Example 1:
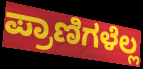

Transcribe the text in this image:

ಪ್ರಾಣಿಗಳೆಲ್ಲ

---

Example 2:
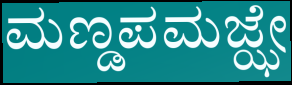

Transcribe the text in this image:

ಮಣ್ಡಪಮಜ್ಝೇ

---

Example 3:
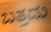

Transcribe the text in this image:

ಬತ್ತದು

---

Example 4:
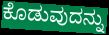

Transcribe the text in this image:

ಕೊಡುವುದನ್ನು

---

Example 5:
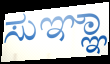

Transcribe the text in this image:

ಸುಞ್ಞಾ